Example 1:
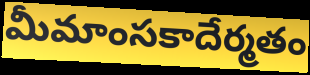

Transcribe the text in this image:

మీమాంసకాదేర్మతం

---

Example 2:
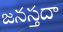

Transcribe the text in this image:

జనస్తదా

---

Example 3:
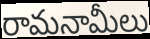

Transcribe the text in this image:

రామనామీలు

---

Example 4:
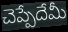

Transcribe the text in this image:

చెప్పేదేమీ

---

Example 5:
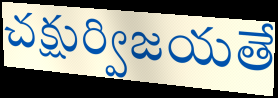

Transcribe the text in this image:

చక్షుర్విజయతే